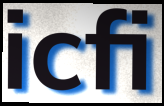
icfi